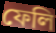
ফেলি